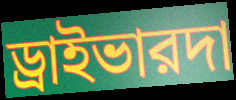
ড্রাইভারদা